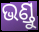
ଭଣ୍ଡୁ